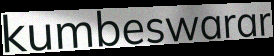
kumbeswarar